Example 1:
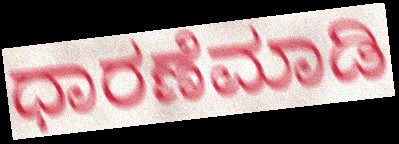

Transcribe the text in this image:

ಧಾರಣೆಮಾಡಿ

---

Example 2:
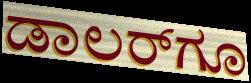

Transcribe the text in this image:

ಡಾಲರ್‌ಗೂ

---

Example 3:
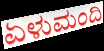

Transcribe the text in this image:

ಏಳುಮಂದಿ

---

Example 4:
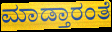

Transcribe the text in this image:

ಮಾಡ್ತಾರಂತೆ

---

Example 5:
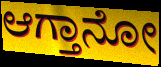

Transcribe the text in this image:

ಆಗ್ತಾನೋ